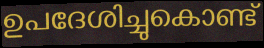
ഉപദേശിച്ചുകൊണ്ട്